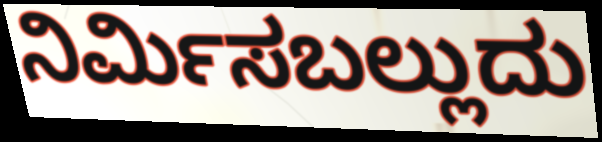
ನಿರ್ಮಿಸಬಲ್ಲುದು